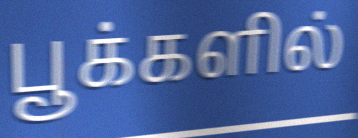
பூக்களில்